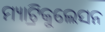
ମ୍ୟାଟ୍ରିକୁଲେସନ